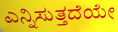
ಎನ್ನಿಸುತ್ತದೆಯೇ